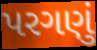
પરગણું